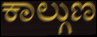
ಕಾಲ್ಗುಣ